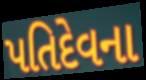
પતિદેવના